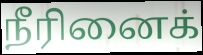
நீரினைக்